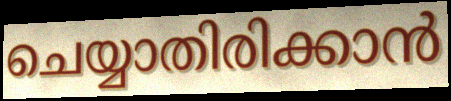
ചെയ്യാതിരിക്കാൻ